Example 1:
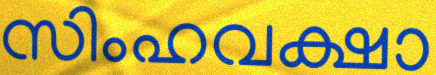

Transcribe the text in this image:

സിംഹവക്ഷാ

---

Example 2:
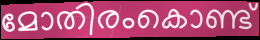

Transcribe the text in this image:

മോതിരംകൊണ്ട്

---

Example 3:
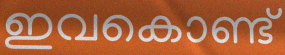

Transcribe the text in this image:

ഇവകൊണ്ട്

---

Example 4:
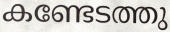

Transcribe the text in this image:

കണ്ടേടത്തു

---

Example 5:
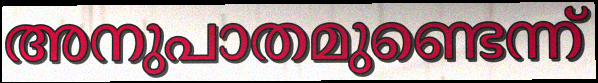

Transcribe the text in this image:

അനുപാതമുണ്ടെന്ന്